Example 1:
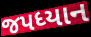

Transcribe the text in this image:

જપધ્યાન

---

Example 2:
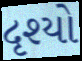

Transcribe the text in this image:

દૃશ્યો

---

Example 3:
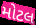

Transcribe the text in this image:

મોટલ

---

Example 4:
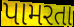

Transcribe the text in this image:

પામરતા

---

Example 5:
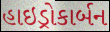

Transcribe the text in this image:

હાઇડ્રોકાર્બન